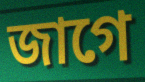
জাগে